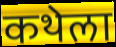
कथेला